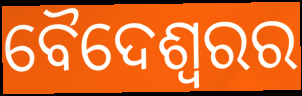
ବୈଦେଶ୍ୱରର